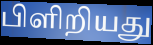
பிளிறியது